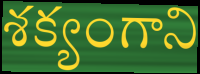
శక్యంగాని